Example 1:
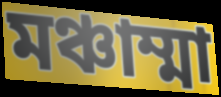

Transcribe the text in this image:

মঞ্চাম্মা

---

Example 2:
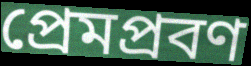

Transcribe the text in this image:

প্রেমপ্রবণ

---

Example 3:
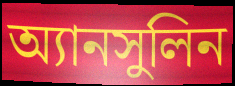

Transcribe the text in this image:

অ্যানসুলিন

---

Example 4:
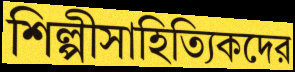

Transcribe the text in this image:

শিল্পীসাহিত্যিকদের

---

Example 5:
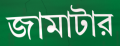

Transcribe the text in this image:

জামাটার